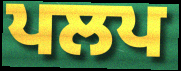
ਪਲਪ